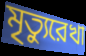
মৃত্যুরেখা